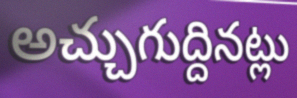
అచ్చుగుద్దినట్లు